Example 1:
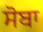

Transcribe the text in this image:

ਸੋਬਾ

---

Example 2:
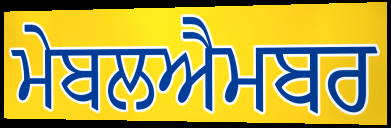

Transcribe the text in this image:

ਮੇਬਲਐਮਬਰ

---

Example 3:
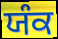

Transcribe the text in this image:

ਯੰਕ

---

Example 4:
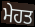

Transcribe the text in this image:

ਮੇਹਤ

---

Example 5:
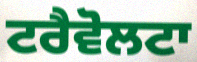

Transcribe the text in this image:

ਟਰੈਵੋਲਟਾ